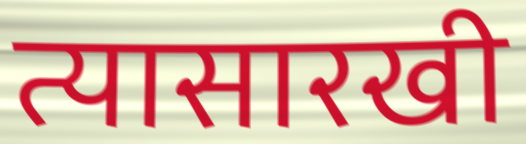
त्यासारखी